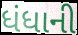
ધંધાની